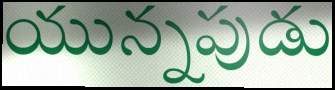
యున్నపుడు